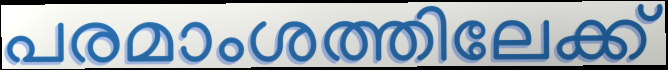
പരമാംശത്തിലേക്ക്